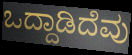
ಒದ್ದಾಡಿದೆವು